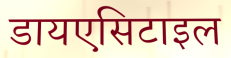
डायएसिटाइल